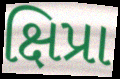
ક્ષિપ્રા